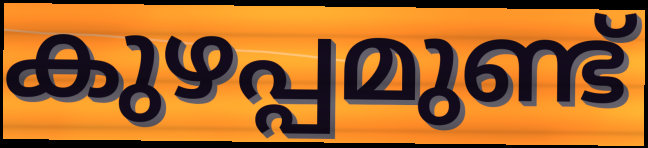
കുഴപ്പമുണ്ട്